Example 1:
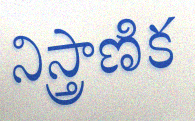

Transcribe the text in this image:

నిస్త్రాణిక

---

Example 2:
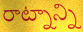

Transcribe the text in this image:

రాట్నాన్ని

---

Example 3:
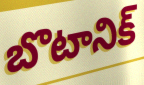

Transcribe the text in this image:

బొటానిక్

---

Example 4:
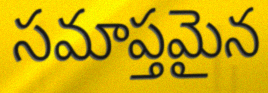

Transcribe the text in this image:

సమాప్తమైన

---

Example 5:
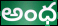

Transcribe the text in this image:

అంధ